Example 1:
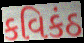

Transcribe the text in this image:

કવિકંઠ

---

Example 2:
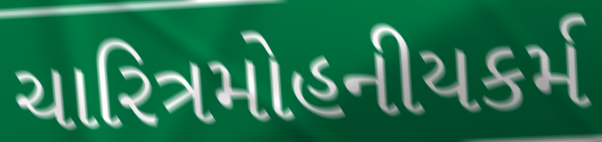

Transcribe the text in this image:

ચારિત્રમોહનીયકર્મ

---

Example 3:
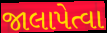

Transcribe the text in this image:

જાલાપેત્વા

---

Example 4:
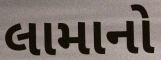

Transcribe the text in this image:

લામાનો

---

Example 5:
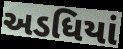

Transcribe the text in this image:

અડધિયાં